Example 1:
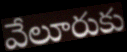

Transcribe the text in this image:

వేలూరుకు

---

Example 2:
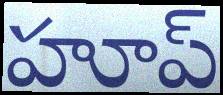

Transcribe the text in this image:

హూప్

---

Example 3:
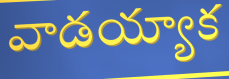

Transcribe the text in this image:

వాడయ్యాక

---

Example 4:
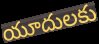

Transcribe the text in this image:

యూదులకు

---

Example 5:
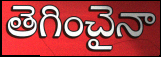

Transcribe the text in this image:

తెగించైనా